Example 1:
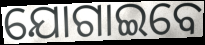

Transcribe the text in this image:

ଯୋଗାଇବେ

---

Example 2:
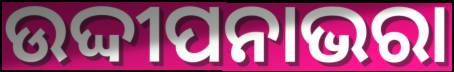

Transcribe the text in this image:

ଉଦ୍ଦୀପନାଭରା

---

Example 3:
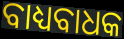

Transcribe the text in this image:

ବାଧ୍ୟବାଧକ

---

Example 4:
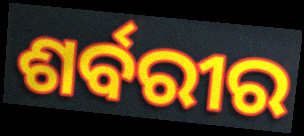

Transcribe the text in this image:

ଶର୍ବରୀର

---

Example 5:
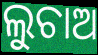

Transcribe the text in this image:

ଲୁଚାଅ